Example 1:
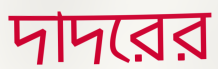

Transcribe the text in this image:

দাদরের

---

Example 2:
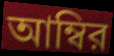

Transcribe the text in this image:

আম্বির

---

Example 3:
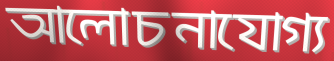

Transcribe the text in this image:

আলোচনাযোগ্য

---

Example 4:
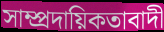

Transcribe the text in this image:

সাম্প্রদায়িকতাবাদী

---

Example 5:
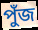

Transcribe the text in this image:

পুঁজ